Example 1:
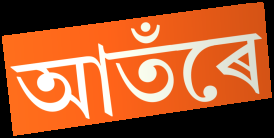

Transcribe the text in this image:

আতঁৰে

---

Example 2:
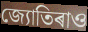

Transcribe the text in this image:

জ্যোতিৰাও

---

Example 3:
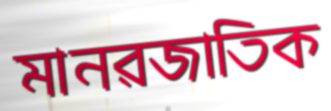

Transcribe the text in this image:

মানৱজাতিক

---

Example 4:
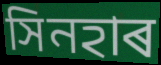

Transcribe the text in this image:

সিনহাৰ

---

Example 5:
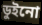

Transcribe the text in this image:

ডুইনো